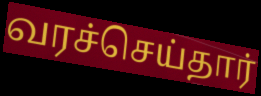
வரச்செய்தார்